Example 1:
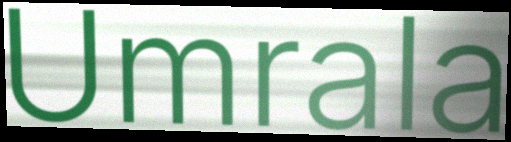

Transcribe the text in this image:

Umrala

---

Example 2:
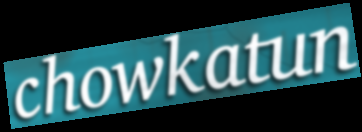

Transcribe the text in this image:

chowkatun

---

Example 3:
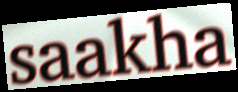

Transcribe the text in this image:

saakha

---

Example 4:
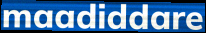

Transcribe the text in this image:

maadiddare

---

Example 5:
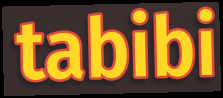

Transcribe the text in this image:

tabibi